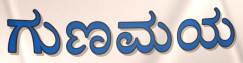
ಗುಣಮಯ